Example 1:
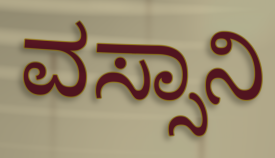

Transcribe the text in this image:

ವಸ್ಸಾನಿ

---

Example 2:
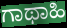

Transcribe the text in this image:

ಗಾಥಾಹಿ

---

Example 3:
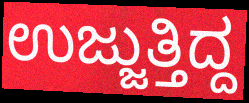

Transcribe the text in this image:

ಉಜ್ಜುತ್ತಿದ್ದ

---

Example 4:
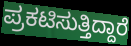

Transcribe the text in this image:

ಪ್ರಕಟಿಸುತ್ತಿದ್ದಾರೆ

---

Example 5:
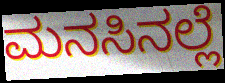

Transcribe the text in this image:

ಮನಸಿನಲ್ಲೆ